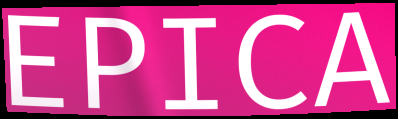
EPICA